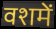
वशमें